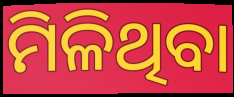
ମିଳିଥିବା